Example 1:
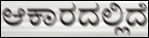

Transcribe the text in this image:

ಆಕಾರದಲ್ಲಿದೆ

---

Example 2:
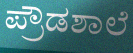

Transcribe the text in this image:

ಪ್ರೌಡಶಾಲೆ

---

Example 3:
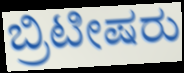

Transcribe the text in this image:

ಬ್ರಿಟೀಷರು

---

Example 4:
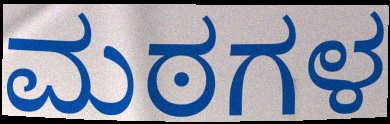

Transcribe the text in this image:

ಮಠಗಳ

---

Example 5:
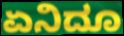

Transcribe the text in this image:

ಏನಿದೂ